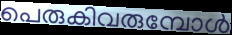
പെരുകിവരുമ്പോൾ